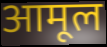
आमूल